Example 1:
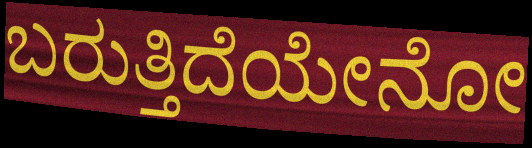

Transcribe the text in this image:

ಬರುತ್ತಿದೆಯೇನೋ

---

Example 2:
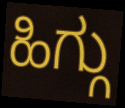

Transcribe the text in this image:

ಹಿಗ್ಗು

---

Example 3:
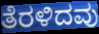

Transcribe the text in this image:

ತೆರಳಿದವು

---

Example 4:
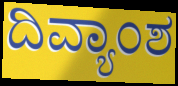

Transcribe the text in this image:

ದಿವ್ಯಾಂಶ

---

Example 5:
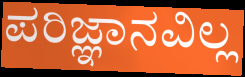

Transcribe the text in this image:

ಪರಿಜ್ಞಾನವಿಲ್ಲ